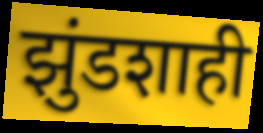
झुंडशाही